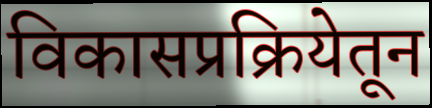
विकासप्रक्रियेतून